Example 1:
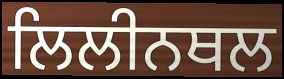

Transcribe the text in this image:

ਲਿਲੀਨਥਲ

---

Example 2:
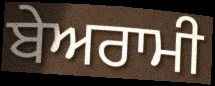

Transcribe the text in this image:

ਬੇਅਰਾਮੀ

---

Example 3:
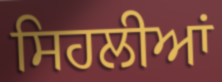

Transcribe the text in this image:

ਸਿਹਲੀਆਂ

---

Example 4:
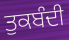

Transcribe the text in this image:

ਤੁਕਬੰਦੀ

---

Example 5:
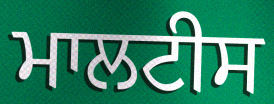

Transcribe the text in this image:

ਮਾਲਟੀਸ